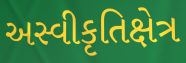
અસ્વીકૃતિક્ષેત્ર